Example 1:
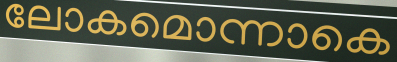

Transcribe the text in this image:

ലോകമൊന്നാകെ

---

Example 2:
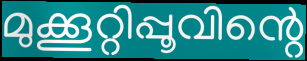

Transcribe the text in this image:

മുക്കൂറ്റിപ്പൂവിന്റെ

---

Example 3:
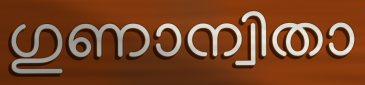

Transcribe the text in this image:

ഗുണാന്വിതാ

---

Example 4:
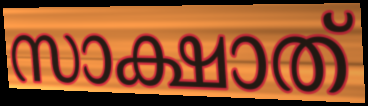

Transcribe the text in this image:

സാക്ഷാത്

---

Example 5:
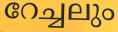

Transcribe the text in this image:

റേച്ചലും